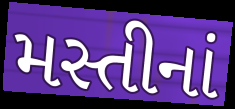
મસ્તીનાં